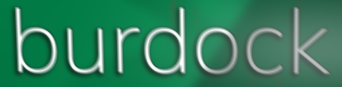
burdock